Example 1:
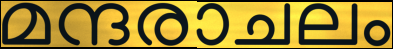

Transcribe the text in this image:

മന്ദരാചലം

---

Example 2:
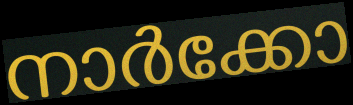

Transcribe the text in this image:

നാർക്കോ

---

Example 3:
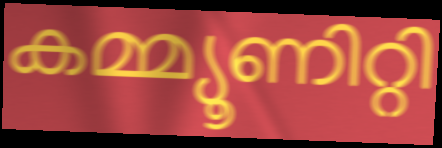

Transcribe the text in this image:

കമ്മ്യൂണിറ്റി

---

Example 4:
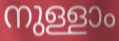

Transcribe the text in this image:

നുള്ളാം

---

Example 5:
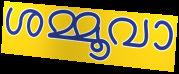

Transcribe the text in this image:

ശമ്മൂവാ